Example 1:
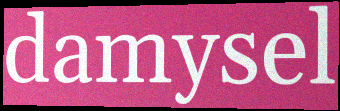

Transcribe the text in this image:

damysel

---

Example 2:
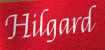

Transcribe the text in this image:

Hilgard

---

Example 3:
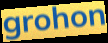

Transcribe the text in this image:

grohon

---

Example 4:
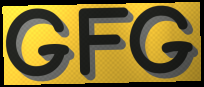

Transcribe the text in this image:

GFG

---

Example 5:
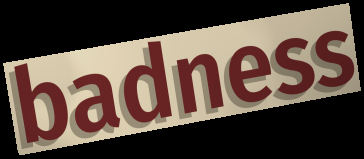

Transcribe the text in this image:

badness